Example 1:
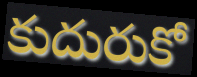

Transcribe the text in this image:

కుదురుకో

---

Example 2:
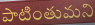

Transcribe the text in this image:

పాటింతుమని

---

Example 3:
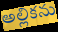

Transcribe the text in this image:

అల్లికను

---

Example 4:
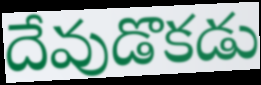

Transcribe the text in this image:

దేవుడొకడు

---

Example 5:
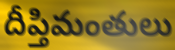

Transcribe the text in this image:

దీప్తిమంతులు